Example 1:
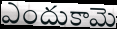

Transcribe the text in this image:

ఎందుకామె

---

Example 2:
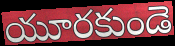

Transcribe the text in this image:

యూరకుండె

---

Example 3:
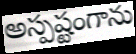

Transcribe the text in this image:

అస్పష్టంగాను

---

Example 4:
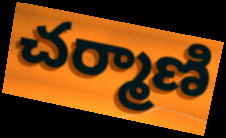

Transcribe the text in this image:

చర్మాణి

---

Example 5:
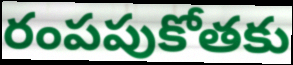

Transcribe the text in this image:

రంపపుకోతకు